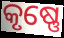
କୃଷ୍ଣେ